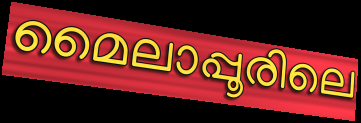
മൈലാപ്പൂരിലെ